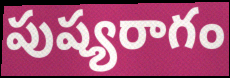
పుష్యరాగం